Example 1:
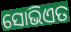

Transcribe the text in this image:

ସୋଭିଏତ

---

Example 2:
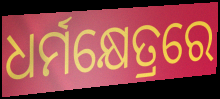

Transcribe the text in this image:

ଧର୍ମକ୍ଷେତ୍ରରେ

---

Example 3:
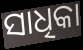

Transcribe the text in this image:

ସାଧିକା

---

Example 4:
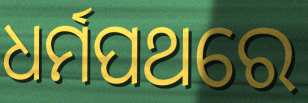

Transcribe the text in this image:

ଧର୍ମପଥରେ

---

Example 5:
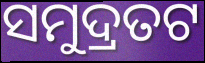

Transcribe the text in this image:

ସମୁଦ୍ରତଟ